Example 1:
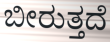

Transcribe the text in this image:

ಬೀರುತ್ತದೆ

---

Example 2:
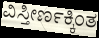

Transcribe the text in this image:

ವಿಸ್ತೀರ್ಣಕ್ಕಿಂತ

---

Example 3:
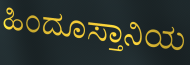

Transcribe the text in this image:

ಹಿಂದೂಸ್ತಾನಿಯ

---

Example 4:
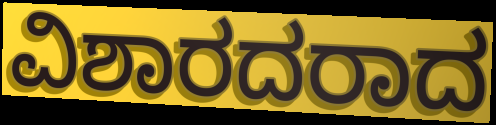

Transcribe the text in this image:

ವಿಶಾರದರಾದ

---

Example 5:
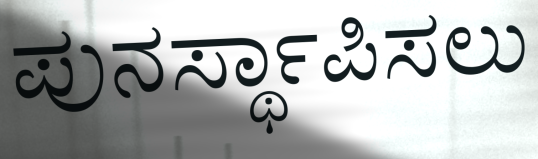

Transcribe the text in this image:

ಪುನರ್ಸ್ಥಾಪಿಸಲು